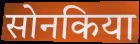
सोनकिया